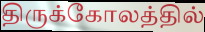
திருக்கோலத்தில்